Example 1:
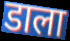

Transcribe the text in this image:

डाला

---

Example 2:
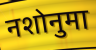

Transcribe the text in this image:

नशोनुमा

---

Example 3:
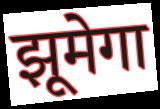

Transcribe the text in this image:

झूमेगा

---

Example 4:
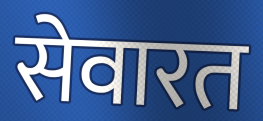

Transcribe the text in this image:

सेवारत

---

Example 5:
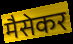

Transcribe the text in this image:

मैसेकर